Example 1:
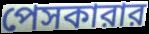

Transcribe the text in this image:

পেসকারার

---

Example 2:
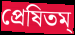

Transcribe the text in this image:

প্রেষিতম্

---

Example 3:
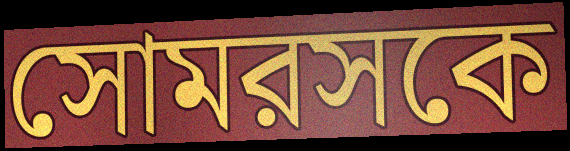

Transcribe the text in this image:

সোমরসকে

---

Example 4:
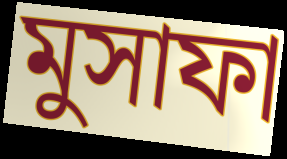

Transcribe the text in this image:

মুসাফা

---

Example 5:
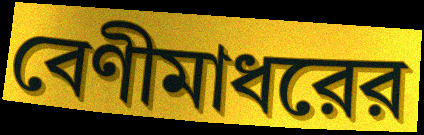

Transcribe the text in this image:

বেণীমাধরের